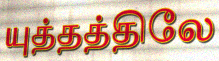
யுத்தத்திலே